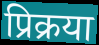
प्रिक्रया